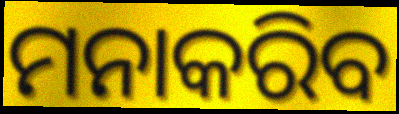
ମନାକରିବ